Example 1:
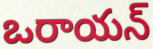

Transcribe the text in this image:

ఒరాయన్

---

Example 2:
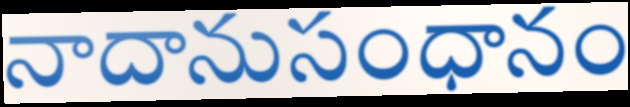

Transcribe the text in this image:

నాదానుసంధానం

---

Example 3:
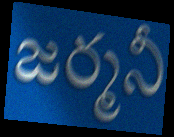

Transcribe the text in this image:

జర్మనీ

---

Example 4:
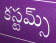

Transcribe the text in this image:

కస్టమ్స్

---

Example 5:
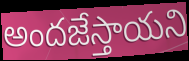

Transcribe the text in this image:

అందజేస్తాయని